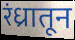
रंध्रातून